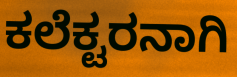
ಕಲೆಕ್ಟರನಾಗಿ